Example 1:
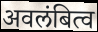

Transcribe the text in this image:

अवलंबित्व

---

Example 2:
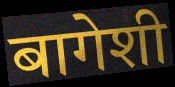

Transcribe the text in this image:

बागेशी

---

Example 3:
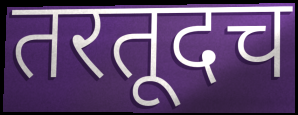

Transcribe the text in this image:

तरतूदच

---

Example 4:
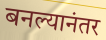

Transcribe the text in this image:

बनल्यानंतर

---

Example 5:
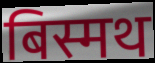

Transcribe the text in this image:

बिस्मथ